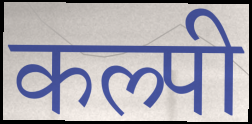
कल्पी